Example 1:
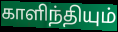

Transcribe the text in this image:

காளிந்தியும்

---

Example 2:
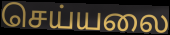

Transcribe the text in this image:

செய்யலை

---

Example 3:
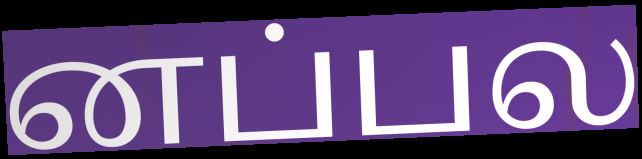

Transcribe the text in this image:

னப்பல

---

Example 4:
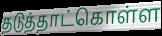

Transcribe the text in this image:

தடுத்தாட்கொள்ள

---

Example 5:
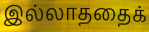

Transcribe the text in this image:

இல்லாததைக்